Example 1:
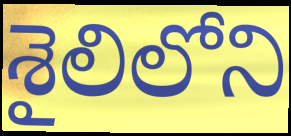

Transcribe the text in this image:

శైలిలోని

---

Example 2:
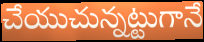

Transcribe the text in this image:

చేయుచున్నట్టుగానే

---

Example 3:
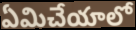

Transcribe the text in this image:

ఏమిచేయాలో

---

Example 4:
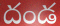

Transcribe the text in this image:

దండ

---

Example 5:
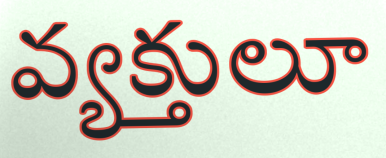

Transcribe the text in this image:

వ్యక్తులూ